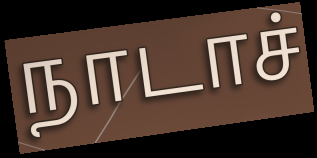
நாடாச்